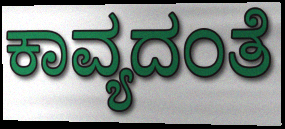
ಕಾವ್ಯದಂತೆ